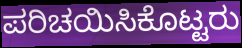
ಪರಿಚಯಿಸಿಕೊಟ್ಟರು